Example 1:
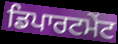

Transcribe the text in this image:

ਡਿਪਾਰਟਮੇਂਟ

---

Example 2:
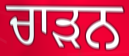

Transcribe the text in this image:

ਚਾੜਨ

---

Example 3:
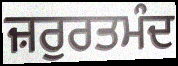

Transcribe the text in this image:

ਜ਼ਰੁਰਤਮੰਦ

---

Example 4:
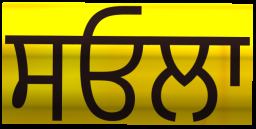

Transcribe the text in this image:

ਸਓਲਾ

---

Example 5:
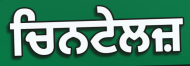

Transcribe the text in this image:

ਚਿਨਟੇਲਜ਼